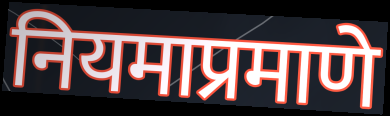
नियमाप्रमाणे